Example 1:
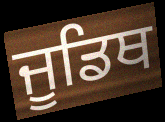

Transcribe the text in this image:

ਜੂਡਿਥ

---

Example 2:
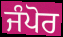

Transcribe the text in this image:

ਜੰਪੋਰ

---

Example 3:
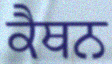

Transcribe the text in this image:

ਕੈਥਨ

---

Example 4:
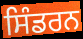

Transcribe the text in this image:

ਸਿੰਡਰਨ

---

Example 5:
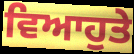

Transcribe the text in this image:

ਵਿਆਹੁਤੇ